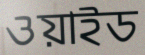
ওয়াইড